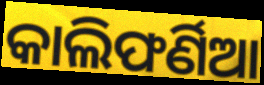
କାଲିଫର୍ଣିଆ